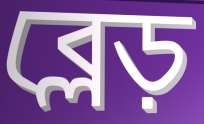
ব্লেড়